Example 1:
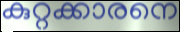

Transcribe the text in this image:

കുറ്റക്കാരനെ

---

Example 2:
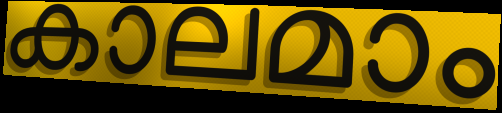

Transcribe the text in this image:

കാലമാം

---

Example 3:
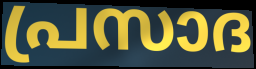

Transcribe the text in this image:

പ്രസാദ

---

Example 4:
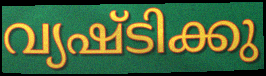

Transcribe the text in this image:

വ്യഷ്ടിക്കു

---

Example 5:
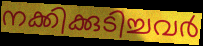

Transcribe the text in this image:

നക്കിക്കുടിച്ചവർ